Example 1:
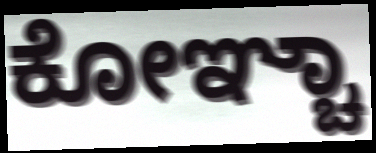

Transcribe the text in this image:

ಕೋಞ್ಚಾ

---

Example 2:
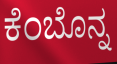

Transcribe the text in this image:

ಕೆಂಬೊನ್ನ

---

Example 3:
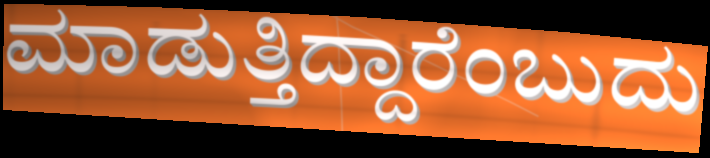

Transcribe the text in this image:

ಮಾಡುತ್ತಿದ್ದಾರೆಂಬುದು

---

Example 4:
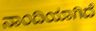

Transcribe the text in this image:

ನಾಂದಿಯಾಗಿದೆ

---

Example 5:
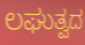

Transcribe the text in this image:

ಲಘುತ್ವದ